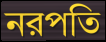
নরপতি